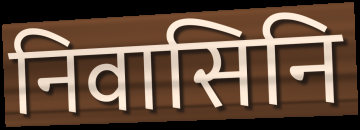
निवासिनि